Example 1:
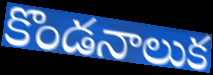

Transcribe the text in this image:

కొండనాలుక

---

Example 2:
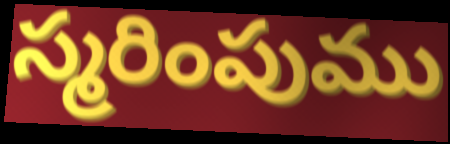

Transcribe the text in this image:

స్మరింపుము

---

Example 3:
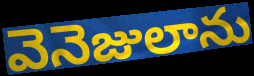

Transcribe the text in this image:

వెనెజులాను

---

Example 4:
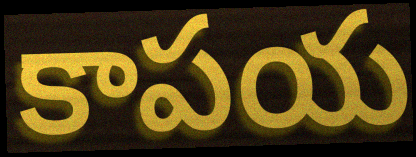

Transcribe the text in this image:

కాపయ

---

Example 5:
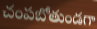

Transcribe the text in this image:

చంపబోతుండగా